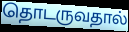
தொடருவதால்